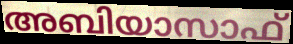
അബിയാസാഫ്